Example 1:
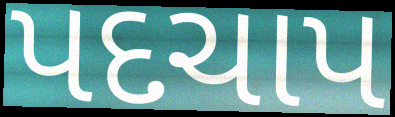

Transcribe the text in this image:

પદચાપ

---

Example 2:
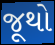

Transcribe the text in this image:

જૂથો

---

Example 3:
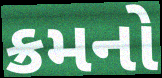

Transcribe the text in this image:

ક્રમનો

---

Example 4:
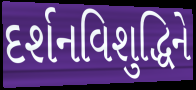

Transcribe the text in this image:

દર્શનવિશુદ્ધિને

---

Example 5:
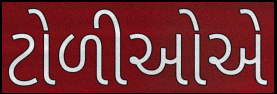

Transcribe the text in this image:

ટોળીઓએ